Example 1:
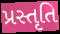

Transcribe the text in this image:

પ્રસ્તૃતિ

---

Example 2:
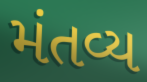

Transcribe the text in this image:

મંતવ્ય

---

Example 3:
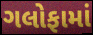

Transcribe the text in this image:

ગલોફામાં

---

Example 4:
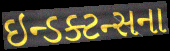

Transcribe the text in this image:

ઇન્ડક્ટન્સના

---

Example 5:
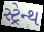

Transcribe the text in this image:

સ્ટ્રેન્થ